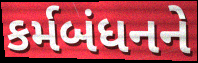
કર્મબંધનને